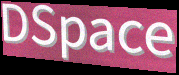
DSpace